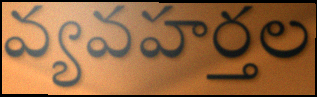
వ్యవహర్తల